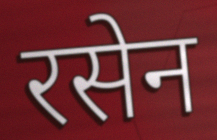
रसेन